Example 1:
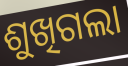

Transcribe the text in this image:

ଶୁଖିଗଲା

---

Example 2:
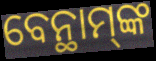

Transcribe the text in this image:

ବେନ୍ଥାମ୍‌ଙ୍କ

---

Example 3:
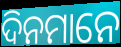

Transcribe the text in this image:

ଦିନମାନେ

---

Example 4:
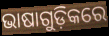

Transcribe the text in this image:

ଭାଷାଗୁଡ଼ିକରେ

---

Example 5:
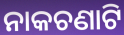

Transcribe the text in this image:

ନାକଚଣାଟି